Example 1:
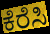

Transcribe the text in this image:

ಕೆರೆಸಿ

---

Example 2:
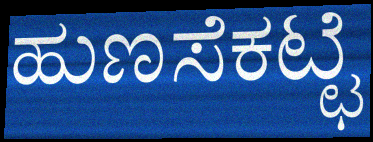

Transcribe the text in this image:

ಹುಣಸೆಕಟ್ಟೆ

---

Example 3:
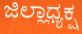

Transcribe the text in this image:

ಜಿಲ್ಲಾಧ್ಯಕ್ಷ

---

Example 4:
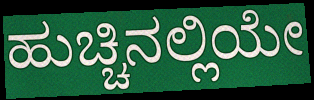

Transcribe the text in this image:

ಹುಚ್ಚಿನಲ್ಲಿಯೇ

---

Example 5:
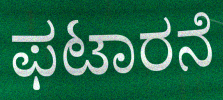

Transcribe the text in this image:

ಫಟಾರನೆ